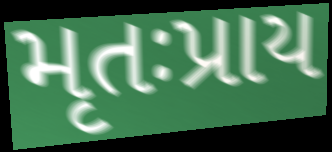
મૃતઃપ્રાય